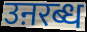
उऩरब्ध